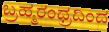
ಬ್ರಹ್ಮರಂಧ್ರದಿಂದ